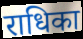
राधिका